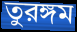
তুরঙ্গম